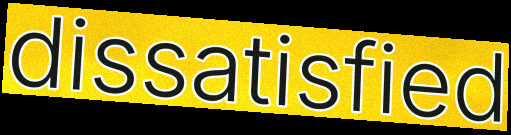
dissatisfied